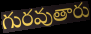
గురవుతారు